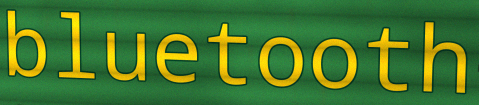
bluetooth